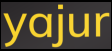
yajur